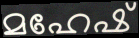
മഹേഷ്